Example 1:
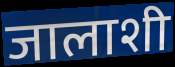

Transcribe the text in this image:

जालाशी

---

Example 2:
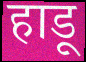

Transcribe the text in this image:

हाडू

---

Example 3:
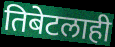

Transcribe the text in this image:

तिबेटलाही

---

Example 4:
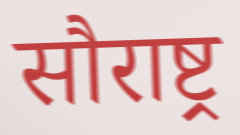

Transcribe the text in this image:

सौराष्ट्र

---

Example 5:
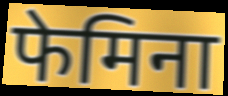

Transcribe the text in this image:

फेमिना